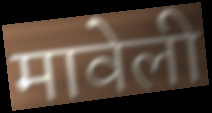
मावेली